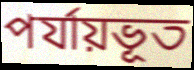
পর্যায়ভূত